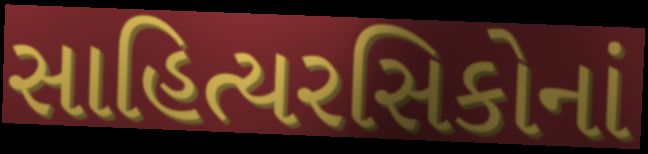
સાહિત્યરસિકોનાં